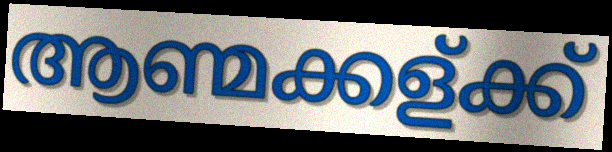
ആണ്മക്കള്ക്ക്